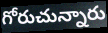
గోరుచున్నారు